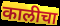
कालीचा